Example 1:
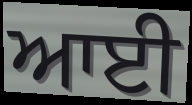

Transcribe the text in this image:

ਆਈ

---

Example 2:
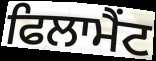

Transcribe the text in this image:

ਫਿਲਾਮੈਂਟ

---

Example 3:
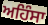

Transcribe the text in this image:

ਅਹਿੰਸਾ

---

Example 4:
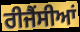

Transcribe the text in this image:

ਰੀਜੈਂਸੀਆਂ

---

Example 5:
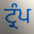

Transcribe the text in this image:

ਟ੍ਰੰਪ